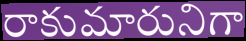
రాకుమారునిగా